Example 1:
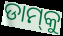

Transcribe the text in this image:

ଡାମ୍‍କୁ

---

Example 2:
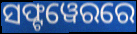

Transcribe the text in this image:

ସଫ୍ଟୱେରରେ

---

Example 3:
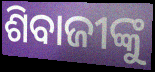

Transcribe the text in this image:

ଶିବାଜୀଙ୍କୁ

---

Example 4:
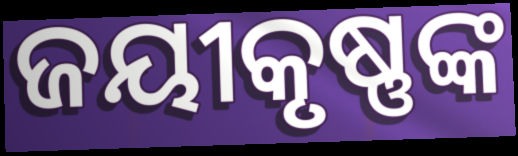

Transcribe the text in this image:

ଜୟୀକୃଷ୍ଣଙ୍କ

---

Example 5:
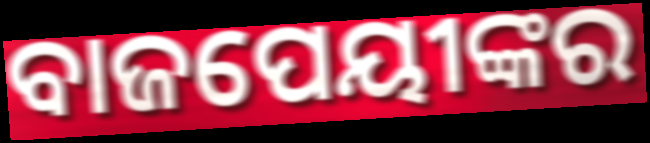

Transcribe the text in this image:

ବାଜପେୟୀଙ୍କର